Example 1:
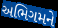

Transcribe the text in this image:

અભિગમને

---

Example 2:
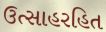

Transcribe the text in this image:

ઉત્સાહરહિત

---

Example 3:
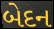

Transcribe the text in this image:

બેદન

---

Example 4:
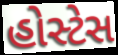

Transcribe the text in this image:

હોસ્ટેસ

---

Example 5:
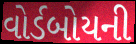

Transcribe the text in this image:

વોર્ડબોયની